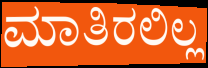
ಮಾತಿರಲಿಲ್ಲ